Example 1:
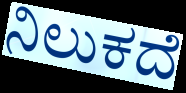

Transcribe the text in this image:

ನಿಲುಕದೆ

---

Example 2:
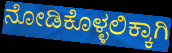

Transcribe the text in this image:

ನೋಡಿಕೊಳ್ಳಲಿಕ್ಕಾಗಿ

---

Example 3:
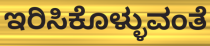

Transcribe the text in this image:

ಇರಿಸಿಕೊಳ್ಳುವಂತೆ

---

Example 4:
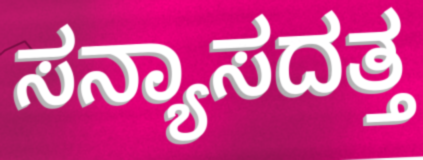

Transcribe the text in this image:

ಸನ್ಯಾಸದತ್ತ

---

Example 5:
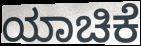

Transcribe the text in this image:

ಯಾಚಿಕೆ